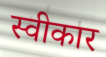
स्वीकार